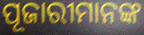
ପୂଜାରୀମାନଙ୍କ